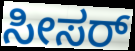
ಸೀಸರ್